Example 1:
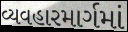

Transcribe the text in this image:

વ્યવહારમાર્ગમાં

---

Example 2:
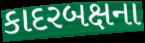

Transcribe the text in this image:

કાદરબક્ષના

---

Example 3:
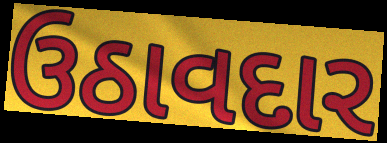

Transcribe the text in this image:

ઉઠાવદાર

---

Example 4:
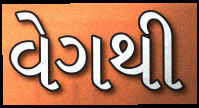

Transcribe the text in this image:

વેગથી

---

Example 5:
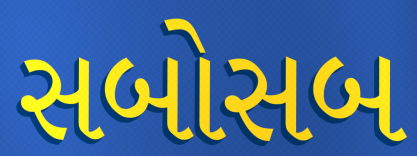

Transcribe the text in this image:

સબોસબ